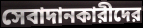
সেবাদানকারীদের